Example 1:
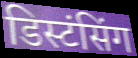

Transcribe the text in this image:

डिस्टंसिंग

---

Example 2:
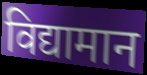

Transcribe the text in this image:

विद्यामान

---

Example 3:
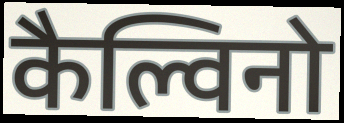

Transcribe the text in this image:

कैल्विनो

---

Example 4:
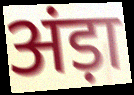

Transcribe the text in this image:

अंड़ा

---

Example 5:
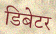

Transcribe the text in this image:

डिबेटर